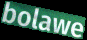
bolawe